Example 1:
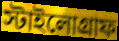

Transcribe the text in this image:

স্টাইলোগ্রাফ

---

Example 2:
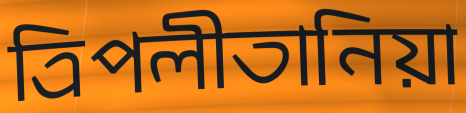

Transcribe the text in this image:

ত্রিপলীতানিয়া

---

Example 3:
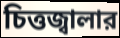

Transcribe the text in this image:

চিত্তজ্বালার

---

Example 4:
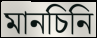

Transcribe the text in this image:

মানচিনি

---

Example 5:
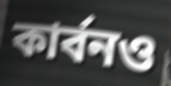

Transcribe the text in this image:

কার্বনও